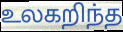
உலகறிந்த